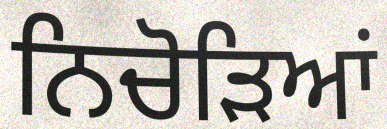
ਨਿਚੋੜਿਆਂ